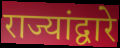
राज्यांद्वारे